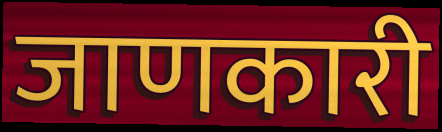
जाणकारी